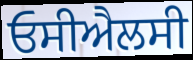
ਓਸੀਐਲਸੀ